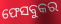
ଫେସବୁକର